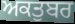
ਅਕਤੁਬਰ